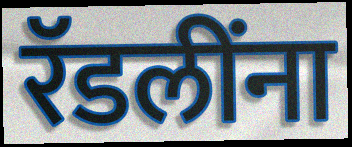
रॅडलींना